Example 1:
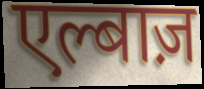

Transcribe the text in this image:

एल्बाज़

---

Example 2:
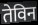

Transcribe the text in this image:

तेविन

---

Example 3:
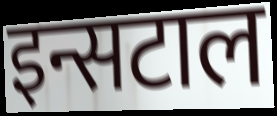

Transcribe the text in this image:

इन्सटाल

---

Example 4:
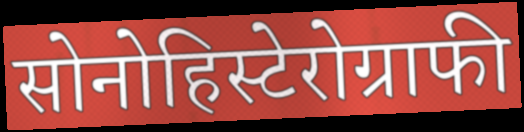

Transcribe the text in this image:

सोनोहिस्टेरोग्राफी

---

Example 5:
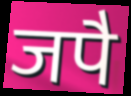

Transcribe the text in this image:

जपै